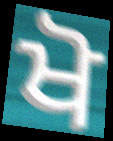
ਖੋ